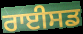
ਰਾਈਸਡ